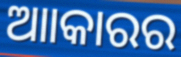
ଆାକାରର